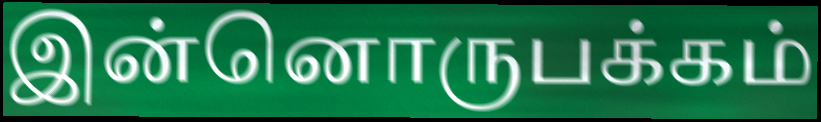
இன்னொருபக்கம்